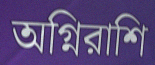
অগ্নিরাশি